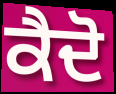
ਕੈਦੋ